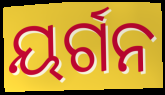
ୟର୍ଗନ